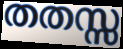
തതസ്സ